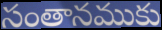
సంతానముకు